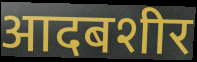
आदबशीर